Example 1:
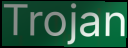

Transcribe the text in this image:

Trojan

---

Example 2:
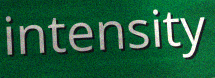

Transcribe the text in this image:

intensity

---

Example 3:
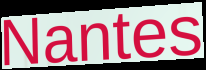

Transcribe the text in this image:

Nantes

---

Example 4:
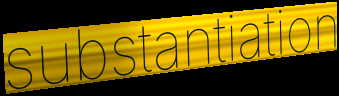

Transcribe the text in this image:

substantiation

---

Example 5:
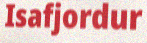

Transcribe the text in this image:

Isafjordur